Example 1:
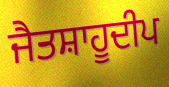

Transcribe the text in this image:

ਜੈਤਸ਼ਾਹੂਦੀਪ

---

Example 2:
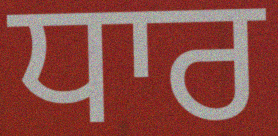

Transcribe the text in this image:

ਧਾਰ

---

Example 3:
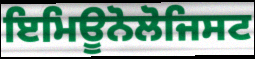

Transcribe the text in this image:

ਇਮਿਊਨੋਲੋਜਿਸਟ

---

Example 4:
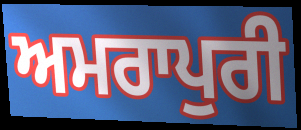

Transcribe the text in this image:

ਅਮਰਾਪੁਰੀ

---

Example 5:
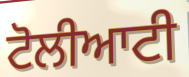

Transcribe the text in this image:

ਟੋਲੀਆਟੀ